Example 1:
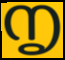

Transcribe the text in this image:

നൃ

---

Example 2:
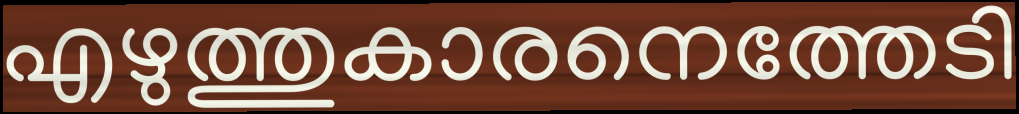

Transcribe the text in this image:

എഴുത്തുകാരനെത്തേടി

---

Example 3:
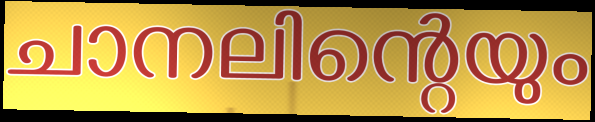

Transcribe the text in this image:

ചാനലിന്റെയും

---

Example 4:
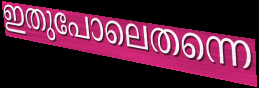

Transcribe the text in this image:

ഇതുപോലെതന്നെ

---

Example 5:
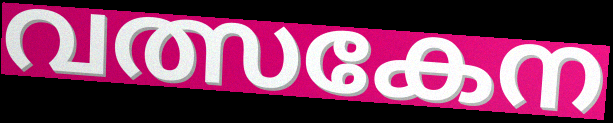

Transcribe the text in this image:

വത്സകേന